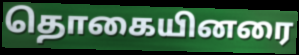
தொகையினரை